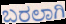
ಬರಲಾಗಿ